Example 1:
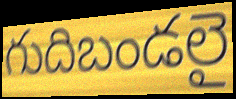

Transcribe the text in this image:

గుదిబండలై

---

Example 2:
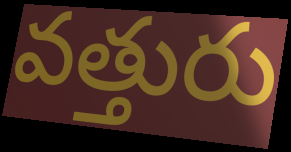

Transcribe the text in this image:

వత్తురు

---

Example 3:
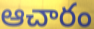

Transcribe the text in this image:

ఆచారం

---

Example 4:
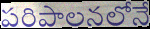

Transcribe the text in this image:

పరిపాలనలోనే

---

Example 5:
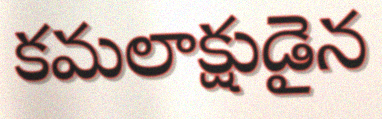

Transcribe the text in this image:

కమలాక్షుడైన